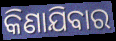
କିଣାଯିବାର